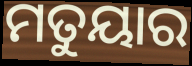
ମତୁୟାର